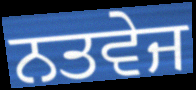
ਨਤਵੇਜ